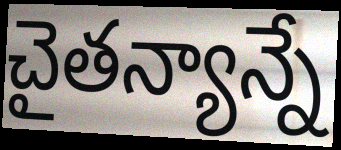
చైతన్యాన్నే